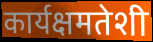
कार्यक्षमतेशी